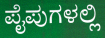
ಪೈಪುಗಳಲ್ಲಿ